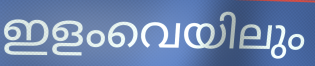
ഇളംവെയിലും